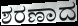
ಶರಣಾದ